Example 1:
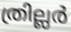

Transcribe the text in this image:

ത്രില്ലർ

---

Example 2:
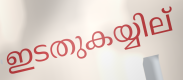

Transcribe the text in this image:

ഇടതുകയ്യില്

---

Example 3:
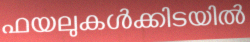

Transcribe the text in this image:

ഫയലുകൾക്കിടയിൽ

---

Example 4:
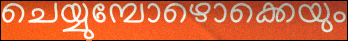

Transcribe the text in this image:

ചെയ്യുമ്പോഴൊക്കെയും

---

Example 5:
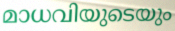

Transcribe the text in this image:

മാധവിയുടെയും